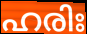
ഹരിഃ